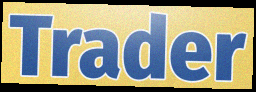
Trader